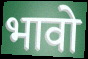
भावो